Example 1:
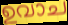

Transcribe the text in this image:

ഉവാച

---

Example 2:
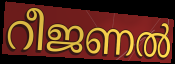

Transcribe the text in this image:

റീജണൽ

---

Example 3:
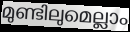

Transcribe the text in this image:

മുണ്ടിലുമെല്ലാം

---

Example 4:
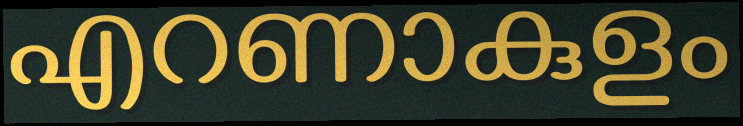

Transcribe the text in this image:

എറണാകുളം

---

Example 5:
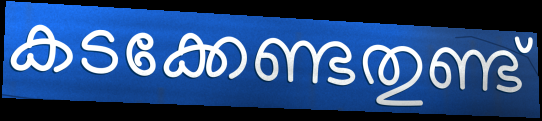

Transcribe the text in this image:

കടക്കേണ്ടതുണ്ട്